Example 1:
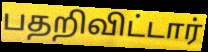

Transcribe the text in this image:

பதறிவிட்டார்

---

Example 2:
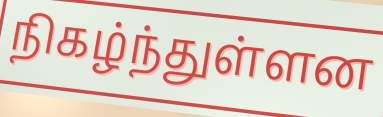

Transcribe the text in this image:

நிகழ்ந்துள்ளன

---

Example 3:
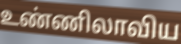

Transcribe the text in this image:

உண்ணிலாவிய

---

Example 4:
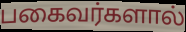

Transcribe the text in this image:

பகைவர்களால்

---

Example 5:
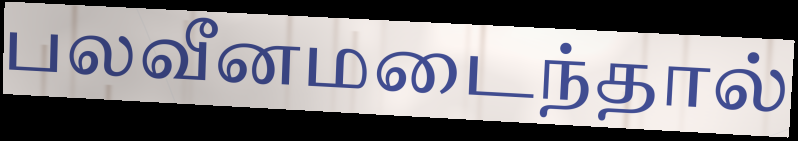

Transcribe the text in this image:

பலவீனமடைந்தால்